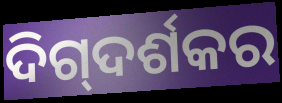
ଦିଗ୍‌ଦର୍ଶକର